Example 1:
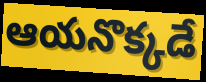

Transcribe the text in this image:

ఆయనొక్కడే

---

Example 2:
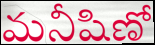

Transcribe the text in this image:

మనీషిణో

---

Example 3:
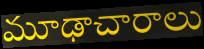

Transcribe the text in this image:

మూఢాచారాలు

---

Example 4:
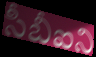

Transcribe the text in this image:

సీబీఐని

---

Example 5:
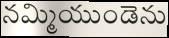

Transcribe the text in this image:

నమ్మియుండెను